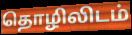
தொழிலிடம்